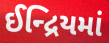
ઈન્દ્રિયમાં